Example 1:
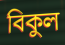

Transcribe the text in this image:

বিকুল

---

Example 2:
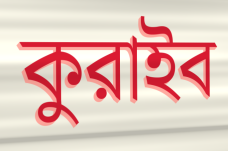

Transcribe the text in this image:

কুরাইব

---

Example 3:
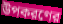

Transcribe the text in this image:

উপকরণের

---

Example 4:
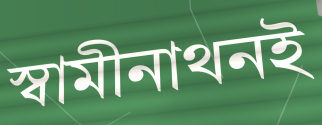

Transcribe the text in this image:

স্বামীনাথনই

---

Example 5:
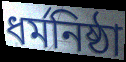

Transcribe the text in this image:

ধর্মনিষ্ঠা